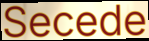
Secede